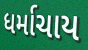
ધર્માચાય